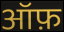
ऑफ़